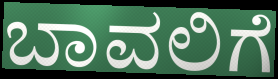
ಬಾವಲಿಗೆ